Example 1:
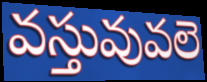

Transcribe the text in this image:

వస్తువువలె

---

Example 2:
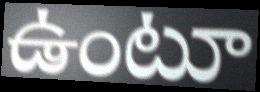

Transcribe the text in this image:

ఉంటూ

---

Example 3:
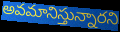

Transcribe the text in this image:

అవమానిస్తున్నారని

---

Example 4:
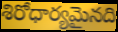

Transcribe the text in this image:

శిరోధార్యమైనది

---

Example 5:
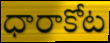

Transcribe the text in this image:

ధారాకోట